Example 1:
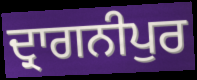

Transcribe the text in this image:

ਦ੍ਰਾਗਨੀਪੁਰ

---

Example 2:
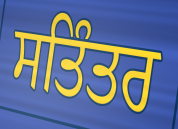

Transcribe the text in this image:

ਸਤਿੰਤਰ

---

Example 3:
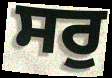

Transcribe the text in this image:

ਸਰੁ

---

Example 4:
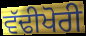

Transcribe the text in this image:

ਵੱਢੀਖੋਰੀ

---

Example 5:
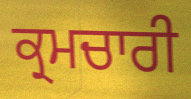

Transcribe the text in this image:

ਕ੍ਰਮਚਾਰੀ